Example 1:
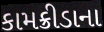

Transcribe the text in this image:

કામક્રીડાના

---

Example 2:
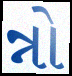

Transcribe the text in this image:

ન્નો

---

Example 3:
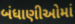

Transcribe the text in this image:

બંધાણીઓમાં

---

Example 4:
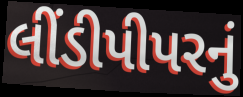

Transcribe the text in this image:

લીંડીપીપરનું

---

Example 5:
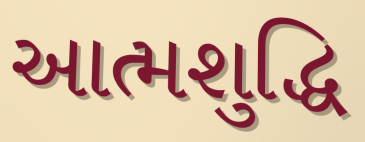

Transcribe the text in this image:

આત્મશુદ્ધિ